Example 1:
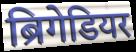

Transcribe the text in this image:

ब्रिगेडियर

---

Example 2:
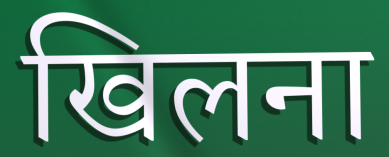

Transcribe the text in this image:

खिलना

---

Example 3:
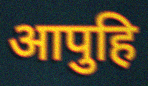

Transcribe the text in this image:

आपुहि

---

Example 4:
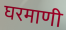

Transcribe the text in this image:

घरमाणी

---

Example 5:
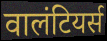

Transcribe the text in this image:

वालंटियर्स